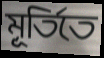
মূর্তিতে